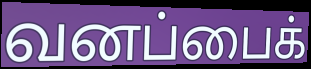
வனப்பைக்